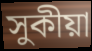
সুকীয়া